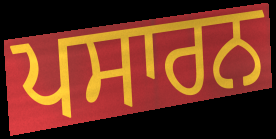
ਪਸਾਰਨ